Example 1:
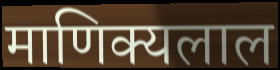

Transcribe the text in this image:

माणिक्यलाल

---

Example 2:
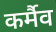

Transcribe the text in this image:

कर्मैव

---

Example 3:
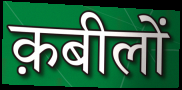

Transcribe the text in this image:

क़बीलों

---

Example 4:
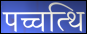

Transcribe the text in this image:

पच्चत्थि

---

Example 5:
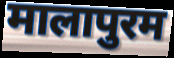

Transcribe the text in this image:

मालापुरम